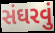
સંઘરવું